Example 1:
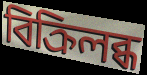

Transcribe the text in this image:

বিক্রিলব্ধ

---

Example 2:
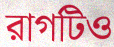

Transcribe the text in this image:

রাগটিও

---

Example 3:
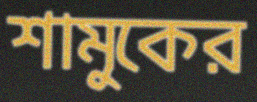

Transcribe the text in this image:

শামুকের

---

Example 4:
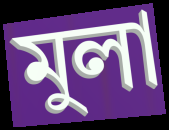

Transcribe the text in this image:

মুলা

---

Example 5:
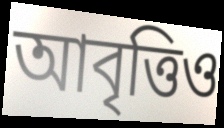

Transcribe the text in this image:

আবৃত্তিও